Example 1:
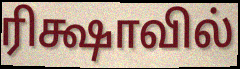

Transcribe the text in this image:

ரிக்ஷாவில்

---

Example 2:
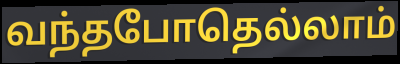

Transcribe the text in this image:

வந்தபோதெல்லாம்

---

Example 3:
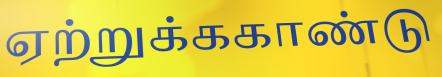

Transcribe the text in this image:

ஏற்றுக்ககாண்டு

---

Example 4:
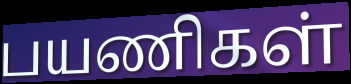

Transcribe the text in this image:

பயணிகள்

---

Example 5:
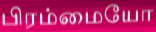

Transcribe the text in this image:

பிரம்மையோ